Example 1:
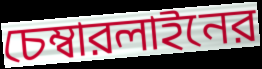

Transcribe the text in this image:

চেম্বারলাইনের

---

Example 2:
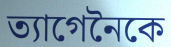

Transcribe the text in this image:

ত্যাগেনৈকে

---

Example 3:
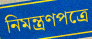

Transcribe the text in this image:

নিমন্ত্রণপত্রে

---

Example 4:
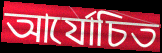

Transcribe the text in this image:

আর্যোচিত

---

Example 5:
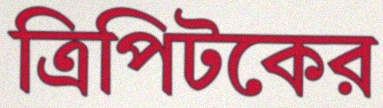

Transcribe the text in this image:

ত্রিপিটকের